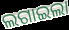
ଲଗାଇଲା